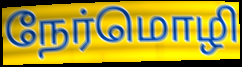
நேர்மொழி